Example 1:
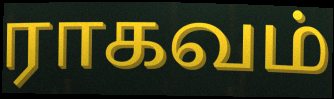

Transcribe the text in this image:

ராகவம்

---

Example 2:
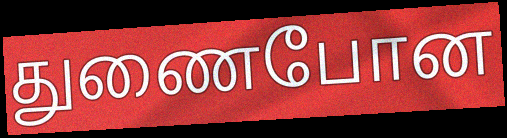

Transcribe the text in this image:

துணைபோன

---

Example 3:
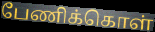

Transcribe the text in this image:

பேணிக்கொள்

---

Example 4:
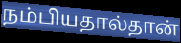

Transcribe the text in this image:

நம்பியதால்தான்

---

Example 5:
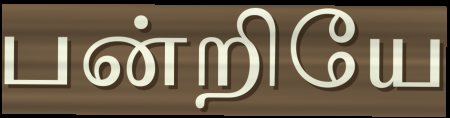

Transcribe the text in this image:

பன்றியே